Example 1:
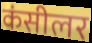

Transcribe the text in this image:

कंसीलर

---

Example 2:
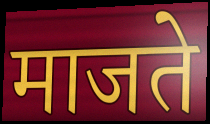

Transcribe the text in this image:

माजते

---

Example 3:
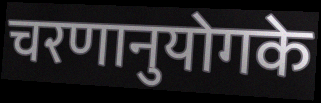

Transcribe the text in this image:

चरणानुयोगके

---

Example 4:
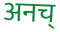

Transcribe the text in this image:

अनच्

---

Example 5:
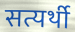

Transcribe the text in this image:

सत्यर्थी